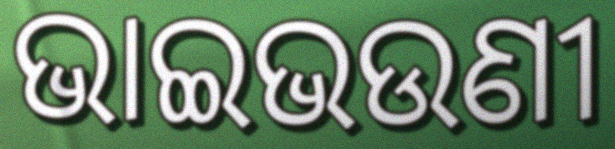
ଭାଇଭଉଣୀ